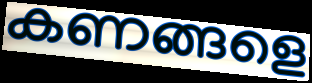
കണങ്ങളെ